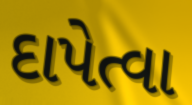
દાપેત્વા